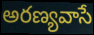
అరణ్యవాసే